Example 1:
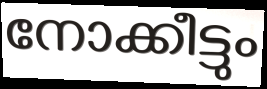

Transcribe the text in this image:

നോക്കീട്ടും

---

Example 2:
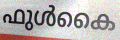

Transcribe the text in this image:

ഫുൾകൈ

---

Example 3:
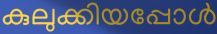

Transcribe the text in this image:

കുലുക്കിയപ്പോൾ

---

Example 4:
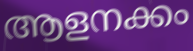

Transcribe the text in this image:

ആളനക്കം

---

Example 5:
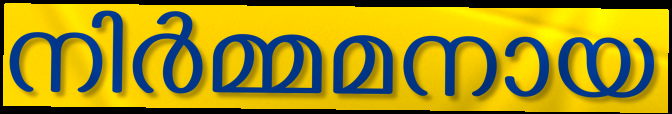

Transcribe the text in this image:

നിർമ്മമനായ